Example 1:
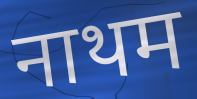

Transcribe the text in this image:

नाथम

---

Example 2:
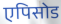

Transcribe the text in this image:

एपिसोड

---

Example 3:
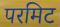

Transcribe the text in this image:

परमिट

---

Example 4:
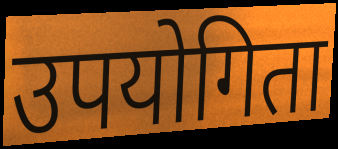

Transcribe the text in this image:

उपयोगिता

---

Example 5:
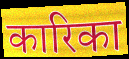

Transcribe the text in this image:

कारिका